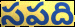
సపది